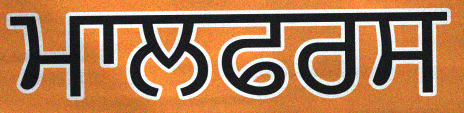
ਮਾਲਫਰਸ